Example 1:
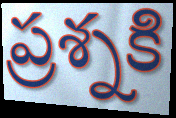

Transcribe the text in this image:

ప్రశ్నకి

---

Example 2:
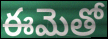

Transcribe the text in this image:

ఈమెతో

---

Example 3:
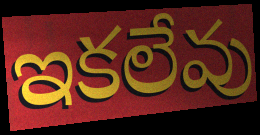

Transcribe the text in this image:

ఇకలేవు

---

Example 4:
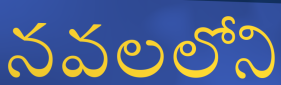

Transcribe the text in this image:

నవలలోని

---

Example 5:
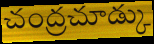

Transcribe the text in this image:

చంద్రచూడ్కు